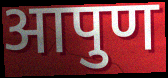
आपुण